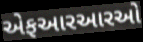
એફઆરઆરઓ